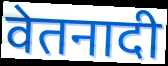
वेतनादी